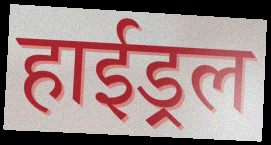
हाईड्रल